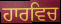
ਹਾਰਵਿਚ